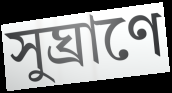
সুঘ্রাণে